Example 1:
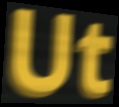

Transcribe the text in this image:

Ut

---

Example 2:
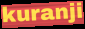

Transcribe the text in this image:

kuranji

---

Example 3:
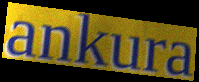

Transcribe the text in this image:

ankura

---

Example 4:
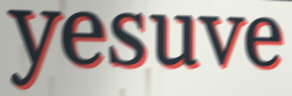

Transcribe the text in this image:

yesuve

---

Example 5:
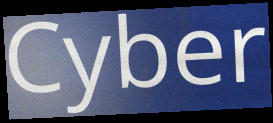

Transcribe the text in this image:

Cyber